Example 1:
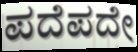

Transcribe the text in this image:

ಪದೆಪದೇ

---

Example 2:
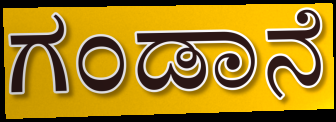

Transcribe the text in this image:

ಗಂಡಾನೆ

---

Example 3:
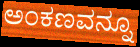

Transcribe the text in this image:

ಅಂಕಣವನ್ನೂ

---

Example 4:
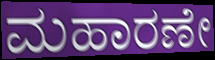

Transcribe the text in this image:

ಮಹಾರಣೇ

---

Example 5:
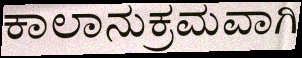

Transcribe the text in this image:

ಕಾಲಾನುಕ್ರಮವಾಗಿ